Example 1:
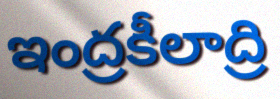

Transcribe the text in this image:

ఇంద్రకీలాద్రి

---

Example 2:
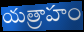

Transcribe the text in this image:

యత్రాహం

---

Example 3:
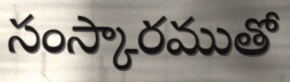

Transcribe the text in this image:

సంస్కారముతో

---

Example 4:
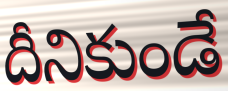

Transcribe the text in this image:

దీనికుండే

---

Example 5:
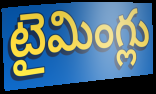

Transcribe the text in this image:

టైమింగ్లు